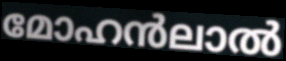
മോഹൻലാൽ